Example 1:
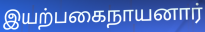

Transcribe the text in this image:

இயற்பகைநாயனார்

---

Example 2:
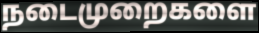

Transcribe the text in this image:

நடைமுறைகளை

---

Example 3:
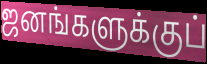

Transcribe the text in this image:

ஜனங்களுக்குப்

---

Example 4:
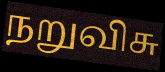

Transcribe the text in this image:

நறுவிசு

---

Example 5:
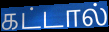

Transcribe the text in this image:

கட்டால்